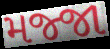
મજ્જા